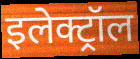
इलेक्ट्रॉल